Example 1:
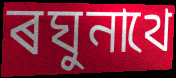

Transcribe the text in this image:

ৰঘুনাথে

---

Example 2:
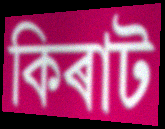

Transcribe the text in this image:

কিৰাট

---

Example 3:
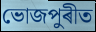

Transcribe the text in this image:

ভোজপুৰীত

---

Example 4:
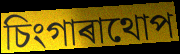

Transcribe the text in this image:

চিংগাৰাথোপ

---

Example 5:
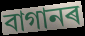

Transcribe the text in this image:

বাগানৰ